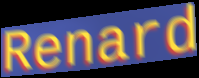
Renard